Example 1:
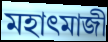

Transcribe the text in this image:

মহাৎমাজী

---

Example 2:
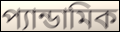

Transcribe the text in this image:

প্যান্ডামিক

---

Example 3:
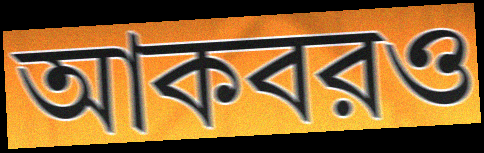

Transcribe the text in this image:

আকবরও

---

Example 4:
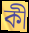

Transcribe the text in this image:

কী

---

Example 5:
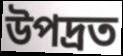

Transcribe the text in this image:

উপদ্রত